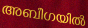
അബീഗയിൽ